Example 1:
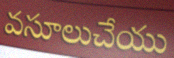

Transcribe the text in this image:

వసూలుచేయు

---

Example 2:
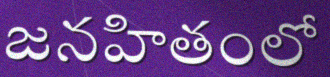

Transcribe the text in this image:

జనహితంలో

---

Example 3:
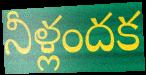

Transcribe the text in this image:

నీళ్లందక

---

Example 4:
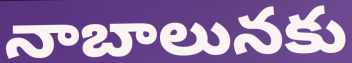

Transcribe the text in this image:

నాబాలునకు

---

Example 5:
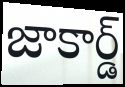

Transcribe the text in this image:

జాకార్డ్